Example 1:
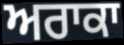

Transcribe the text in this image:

ਅਰਾਕਾ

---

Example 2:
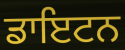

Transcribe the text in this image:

ਡਾਇਟਨ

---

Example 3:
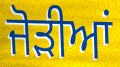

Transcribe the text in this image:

ਜੋਡ਼ੀਆਂ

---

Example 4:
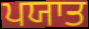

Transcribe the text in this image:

ਪਯਾਤ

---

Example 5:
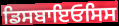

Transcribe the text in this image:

ਡਿਸਬਾਇਓਸਿਸ